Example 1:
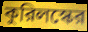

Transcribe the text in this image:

কুরিলস্কের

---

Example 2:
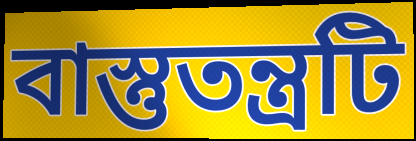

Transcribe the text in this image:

বাস্তুতন্ত্রটি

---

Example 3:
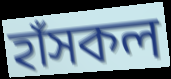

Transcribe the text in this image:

হাঁসকল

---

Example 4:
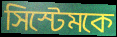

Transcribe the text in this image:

সিস্টেমকে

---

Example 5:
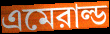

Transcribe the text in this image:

এমেরাল্ড